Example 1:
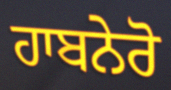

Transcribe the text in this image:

ਹਾਬਨੇਰੋ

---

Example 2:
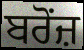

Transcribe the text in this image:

ਬਰੋਂਜ਼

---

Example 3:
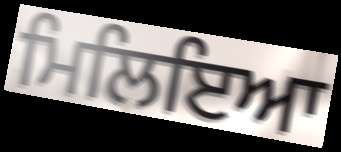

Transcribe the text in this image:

ਮਿਲਿਇਆ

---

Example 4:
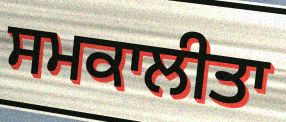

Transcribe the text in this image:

ਸਮਕਾਲੀਤਾ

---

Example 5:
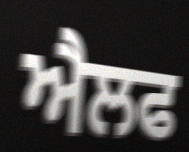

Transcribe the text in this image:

ਐਲਫ